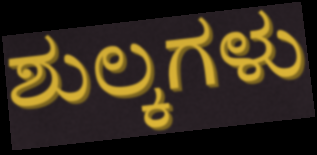
ಶುಲ್ಕಗಳು